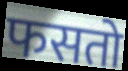
फसतो